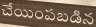
చేయింపబడిన